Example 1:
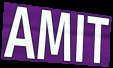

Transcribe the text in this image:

AMIT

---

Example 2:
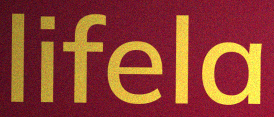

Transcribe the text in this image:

lifela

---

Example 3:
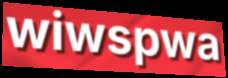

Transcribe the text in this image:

wiwspwa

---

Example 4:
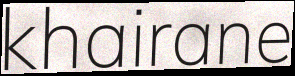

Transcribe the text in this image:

khairane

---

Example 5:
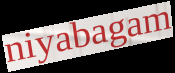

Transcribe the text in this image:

niyabagam